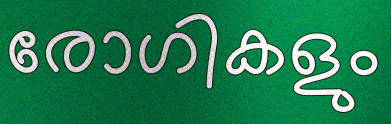
രോഗികളും